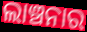
ଲାଞ୍ଚନାର